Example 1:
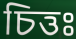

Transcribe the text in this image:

চিত্তঃ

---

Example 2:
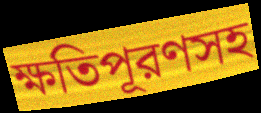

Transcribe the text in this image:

ক্ষতিপূরণসহ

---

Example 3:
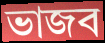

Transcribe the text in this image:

ভাজব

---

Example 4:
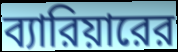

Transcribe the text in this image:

ব্যারিয়ারের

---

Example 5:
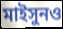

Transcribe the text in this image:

মাইসুনও